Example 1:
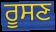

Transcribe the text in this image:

ਰੂਸਣ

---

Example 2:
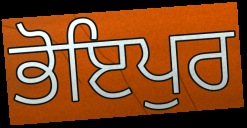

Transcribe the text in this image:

ਭੋਇਪੁਰ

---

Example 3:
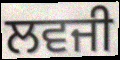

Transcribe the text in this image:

ਲਵਜੀ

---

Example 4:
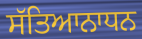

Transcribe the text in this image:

ਸੱਤਿਆਨਾਧਨ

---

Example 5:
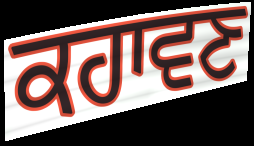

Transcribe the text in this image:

ਕਹਾਵਣ